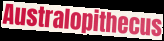
Australopithecus